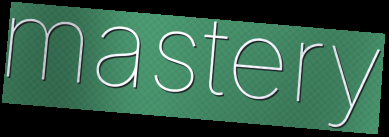
mastery